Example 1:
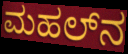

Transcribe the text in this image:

ಮಹಲ್‌ನ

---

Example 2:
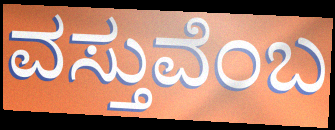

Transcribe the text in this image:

ವಸ್ತುವೆಂಬ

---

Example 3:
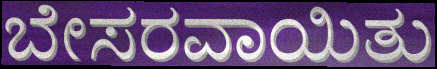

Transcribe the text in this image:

ಬೇಸರವಾಯಿತು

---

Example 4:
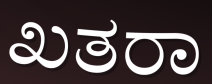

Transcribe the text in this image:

ಖತರಾ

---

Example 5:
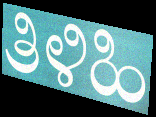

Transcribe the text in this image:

ತಿಳಿಹಿ